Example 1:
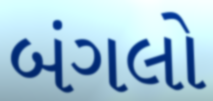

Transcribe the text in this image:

બંગલો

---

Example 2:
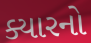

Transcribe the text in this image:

ક્યારનો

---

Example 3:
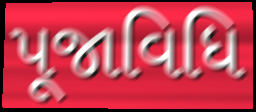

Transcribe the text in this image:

પૂજાવિધિ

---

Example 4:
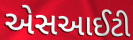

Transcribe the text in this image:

એસઆઈટી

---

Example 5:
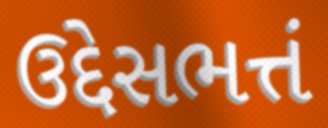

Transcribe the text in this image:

ઉદ્દેસભત્તં